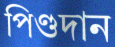
পিণ্ডদান